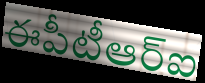
ఈపీటీఆర్ఐ